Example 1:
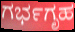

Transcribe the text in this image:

ಗರ್ಭಗೃಹ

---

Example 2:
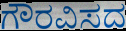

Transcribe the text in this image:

ಗೌರವಿಸದ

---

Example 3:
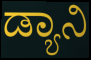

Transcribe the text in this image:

ಡ್ಯಾನಿ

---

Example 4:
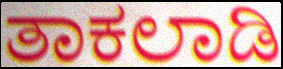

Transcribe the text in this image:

ತಾಕಲಾಡಿ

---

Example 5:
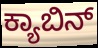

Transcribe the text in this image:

ಕ್ಯಾಬಿನ್